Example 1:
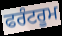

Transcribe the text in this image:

ਫਰੰਟਰੂਮ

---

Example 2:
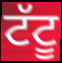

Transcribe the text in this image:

ਟੱਟੂ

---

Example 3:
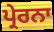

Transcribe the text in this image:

ਪ੍ਰੇਰਨਾ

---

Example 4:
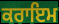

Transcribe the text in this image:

ਕਰਾਇਮ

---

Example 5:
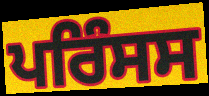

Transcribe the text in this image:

ਪਰਿੰਸਸ